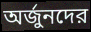
অর্জুনদের